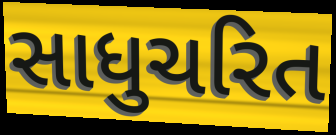
સાધુચરિત